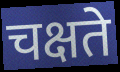
चक्षते